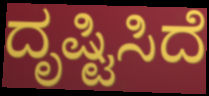
ದೃಷ್ಟಿಸಿದೆ